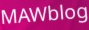
MAWblog